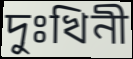
দুঃখিনী